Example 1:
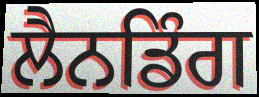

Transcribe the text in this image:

ਲੈਨਡਿੰਗ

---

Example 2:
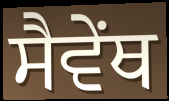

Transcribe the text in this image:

ਸੈਵੇਂਥ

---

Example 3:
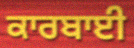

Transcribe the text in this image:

ਕਾਰਬਾਈ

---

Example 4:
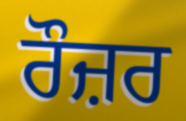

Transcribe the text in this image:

ਰੌਜ਼ਰ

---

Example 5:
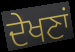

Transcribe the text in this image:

ਦੇਖਣਾਂ